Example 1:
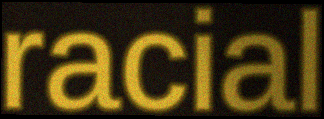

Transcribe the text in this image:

racial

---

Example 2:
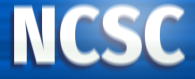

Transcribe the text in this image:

NCSC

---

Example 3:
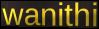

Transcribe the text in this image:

wanithi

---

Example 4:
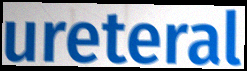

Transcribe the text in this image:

ureteral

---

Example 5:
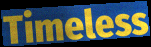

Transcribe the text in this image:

Timeless